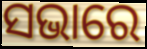
ସଭାରେ